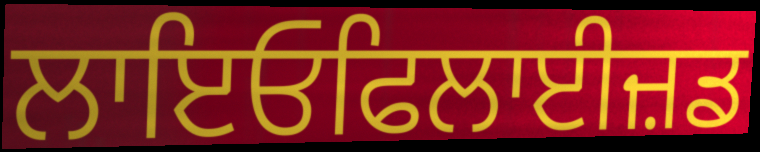
ਲਾਇਓਫਿਲਾਈਜ਼ਡ